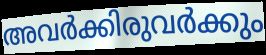
അവർക്കിരുവർക്കും